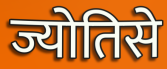
ज्योतिसे